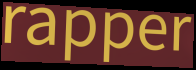
rapper